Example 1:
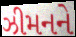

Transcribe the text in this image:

ઝીમનને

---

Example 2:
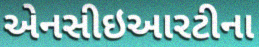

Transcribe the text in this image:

એનસીઇઆરટીના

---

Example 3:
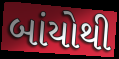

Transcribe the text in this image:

બાંયોથી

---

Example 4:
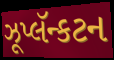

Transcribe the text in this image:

ઝૂપ્લૅન્કટન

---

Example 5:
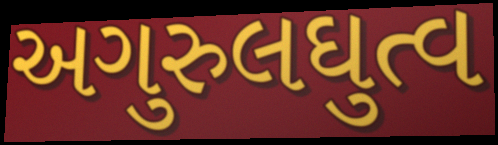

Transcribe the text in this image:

અગુરુલઘુત્વ